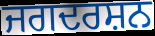
ਜਗਦਰਸ਼ਨ